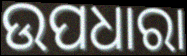
ଉପଧାରା